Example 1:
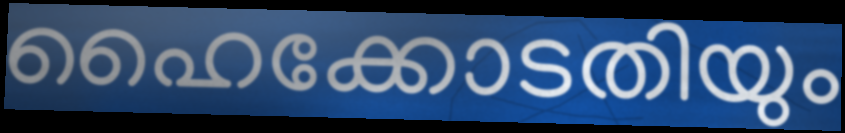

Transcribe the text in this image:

ഹൈക്കോടതിയും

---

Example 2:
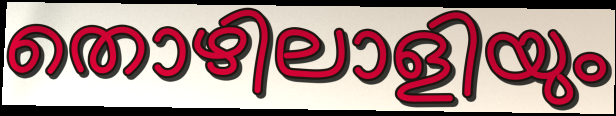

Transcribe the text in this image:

തൊഴിലാളിയും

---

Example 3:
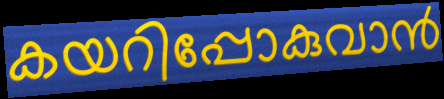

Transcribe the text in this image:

കയറിപ്പോകുവാൻ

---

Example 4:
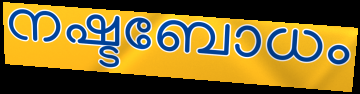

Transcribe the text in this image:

നഷ്ടബോധം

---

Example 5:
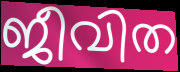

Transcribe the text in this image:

ജീവിത